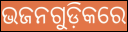
ଭଜନଗୁଡ଼ିକରେ